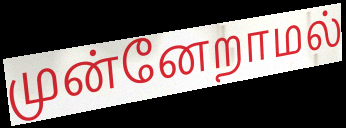
முன்னேறாமல்